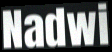
Nadwi